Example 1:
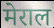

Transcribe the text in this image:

मेराल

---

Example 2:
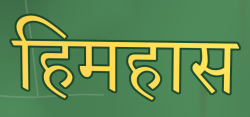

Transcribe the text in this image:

हिमहास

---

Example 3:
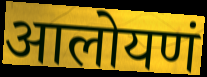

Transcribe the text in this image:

आलोयणं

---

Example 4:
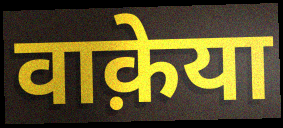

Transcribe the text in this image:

वाक़ेया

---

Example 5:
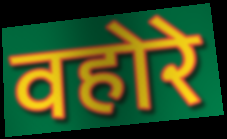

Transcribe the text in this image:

वहोरे